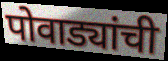
पोवाड्यांची